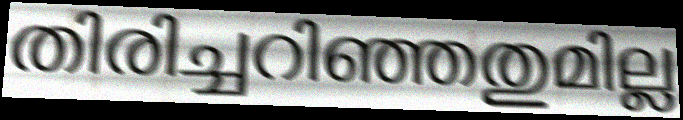
തിരിച്ചറിഞ്ഞതുമില്ല